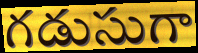
గడుసుగా